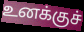
உனக்குச்